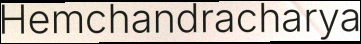
Hemchandracharya